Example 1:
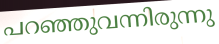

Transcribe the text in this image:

പറഞ്ഞുവന്നിരുന്നു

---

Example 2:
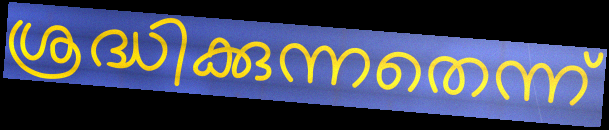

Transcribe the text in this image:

ശ്രദ്ധിക്കുന്നതെന്ന്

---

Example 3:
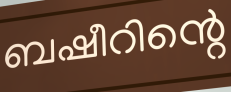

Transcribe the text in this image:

ബഷീറിന്റെ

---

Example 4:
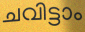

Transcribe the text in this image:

ചവിട്ടാം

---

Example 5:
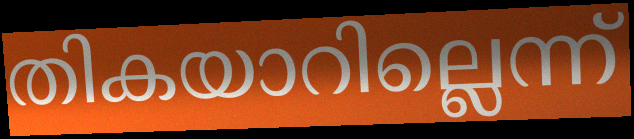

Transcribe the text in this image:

തികയാറില്ലെന്ന്